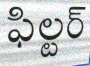
ఫిల్టర్